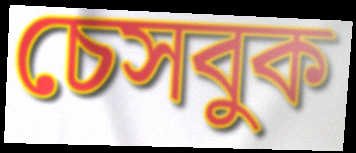
চেসবুক